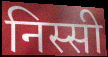
निस्सी